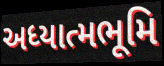
અધ્યાત્મભૂમિ